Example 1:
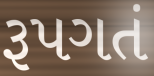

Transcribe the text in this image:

રૂપગતં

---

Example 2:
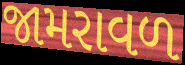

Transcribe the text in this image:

જામરાવળ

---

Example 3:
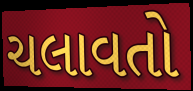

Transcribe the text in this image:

ચલાવતો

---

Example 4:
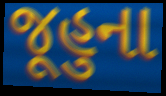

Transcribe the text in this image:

જૂહુના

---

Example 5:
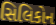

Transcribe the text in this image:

સિલિકોન